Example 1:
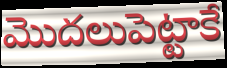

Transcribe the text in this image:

మొదలుపెట్టాకే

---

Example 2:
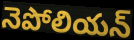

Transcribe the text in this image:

నెపోలియన్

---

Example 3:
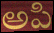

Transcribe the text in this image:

అపి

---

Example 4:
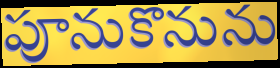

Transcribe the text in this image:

పూనుకొనును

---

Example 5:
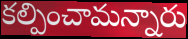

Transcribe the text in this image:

కల్పించామన్నారు